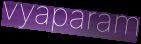
vyaparam